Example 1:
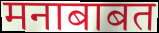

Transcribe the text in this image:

मनाबाबत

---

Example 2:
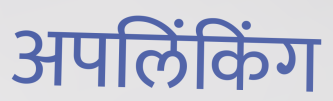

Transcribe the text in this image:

अपलिंकिंग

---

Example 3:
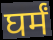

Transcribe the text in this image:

घर्मं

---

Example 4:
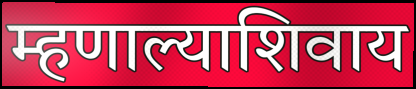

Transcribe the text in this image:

म्हणाल्याशिवाय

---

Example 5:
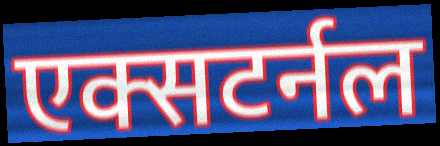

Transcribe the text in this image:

एक्सटर्नल